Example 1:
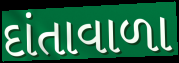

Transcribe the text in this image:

દાંતાવાળા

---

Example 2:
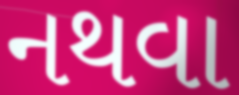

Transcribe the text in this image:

નથવા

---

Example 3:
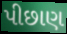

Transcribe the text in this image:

પીછાણ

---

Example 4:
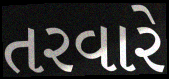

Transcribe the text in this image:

તરવારે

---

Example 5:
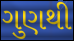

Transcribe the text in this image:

ગુણથી